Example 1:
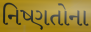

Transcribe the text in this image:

નિષ્ણતોના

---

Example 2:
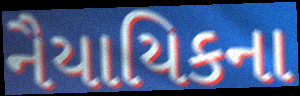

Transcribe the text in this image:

નૈયાયિકના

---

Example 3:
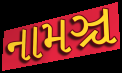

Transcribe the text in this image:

નામઞ્ચ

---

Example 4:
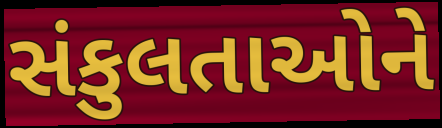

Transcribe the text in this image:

સંકુલતાઓને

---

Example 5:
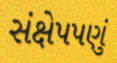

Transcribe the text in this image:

સંક્ષેપપણું